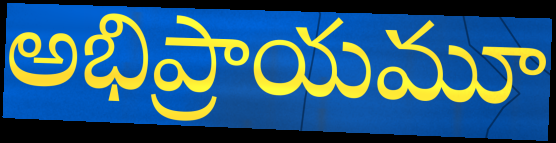
అభిప్రాయమూ